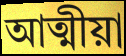
আত্মীয়া